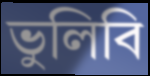
ভুলিবি